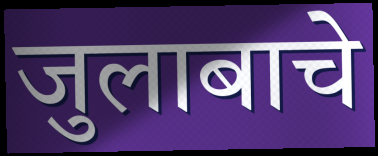
जुलाबाचे